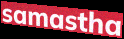
samastha